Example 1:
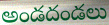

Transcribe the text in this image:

అండదండలు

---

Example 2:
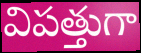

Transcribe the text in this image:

విపత్తుగా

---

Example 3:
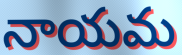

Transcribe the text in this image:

నాయమ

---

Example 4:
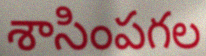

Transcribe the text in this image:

శాసింపగల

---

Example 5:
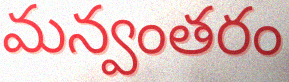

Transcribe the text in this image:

మన్వంతరం